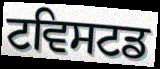
ਟਵਿਸਟਡ